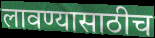
लावण्यासाठीच